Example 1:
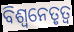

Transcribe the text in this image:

ବିଶ୍ୱନେତୃତ୍ୱ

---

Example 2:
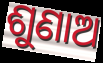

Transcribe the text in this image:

ଶୁଣାଅ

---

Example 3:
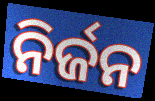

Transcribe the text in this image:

ନିର୍ଜନ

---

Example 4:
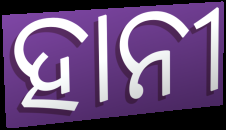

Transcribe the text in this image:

ହାନୀ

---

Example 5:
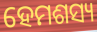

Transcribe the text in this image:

ହେମଶସ୍ୟ